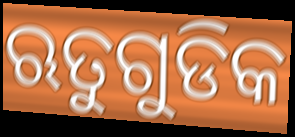
ଋତୁଗୁଡିକ